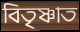
বিতৃষ্ণাত